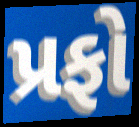
પ્રફો